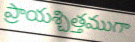
ప్రాయశ్చిత్తముగా